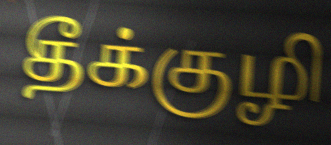
தீக்குழி